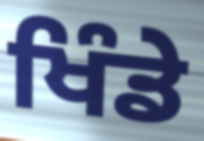
ਖਿੰਡੇ